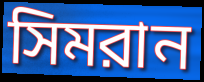
সিমরান